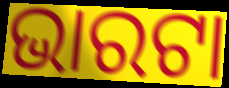
ଭାରଟା